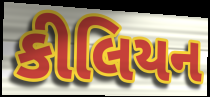
કીલિયન